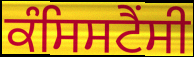
ਕੰਸਿਸਟੈਂਸੀ